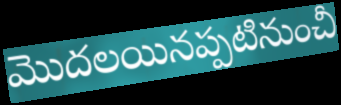
మొదలయినప్పటినుంచీ